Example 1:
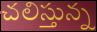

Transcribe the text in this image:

చలిస్తున్న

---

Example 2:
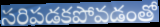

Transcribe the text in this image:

సరిపడకపోవడంతో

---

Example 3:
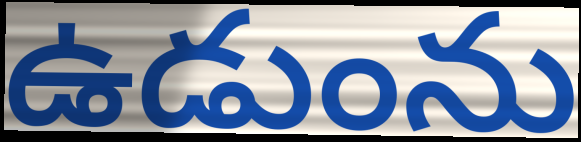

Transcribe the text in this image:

ఉడుంను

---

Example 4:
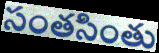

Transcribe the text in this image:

సంతసింతు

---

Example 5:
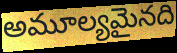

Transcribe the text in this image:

అమూల్యమైనది